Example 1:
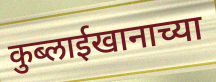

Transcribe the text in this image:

कुब्लाईखानाच्या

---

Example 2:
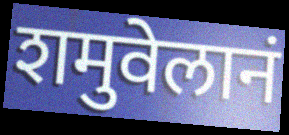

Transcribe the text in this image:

शमुवेलानं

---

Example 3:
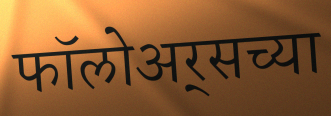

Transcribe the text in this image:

फॉलोअर्सच्या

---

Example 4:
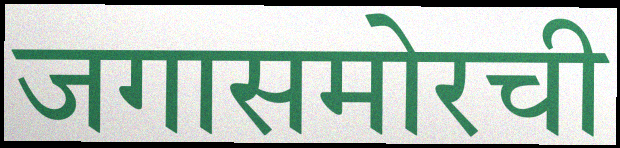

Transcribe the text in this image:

जगासमोरची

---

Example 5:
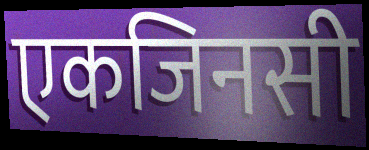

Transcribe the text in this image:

एकजिनसी